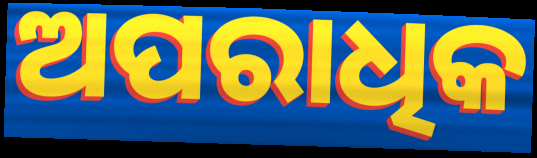
ଅପରାଧିକ